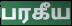
பரகீய